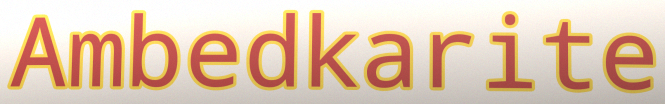
Ambedkarite